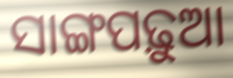
ସାଙ୍ଗପଢ଼ୁଆ